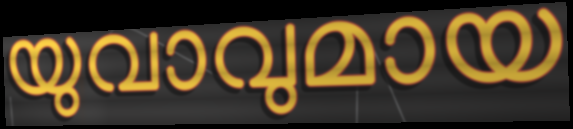
യുവാവുമായ